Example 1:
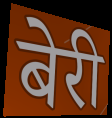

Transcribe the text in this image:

बेरी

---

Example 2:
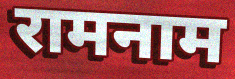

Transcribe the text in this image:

रामनाम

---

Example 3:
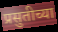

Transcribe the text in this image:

प्रसुतीच्या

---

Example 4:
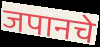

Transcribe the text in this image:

जपानचे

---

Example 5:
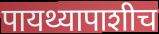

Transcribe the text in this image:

पायथ्यापाशीच